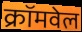
क्रॉमवेल